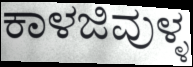
ಕಾಳಜಿವುಳ್ಳ